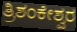
ತ್ರಿಶಂಕೇಶ್ವರ